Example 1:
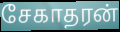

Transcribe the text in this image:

சேகாதரன்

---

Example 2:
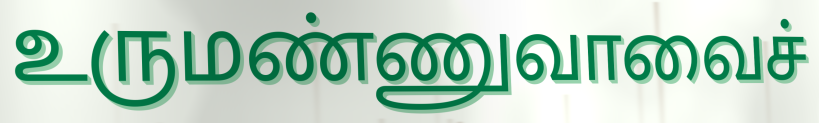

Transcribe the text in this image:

உருமண்ணுவாவைச்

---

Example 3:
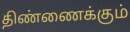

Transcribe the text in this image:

திண்ணைக்கும்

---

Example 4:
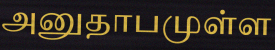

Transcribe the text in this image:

அனுதாபமுள்ள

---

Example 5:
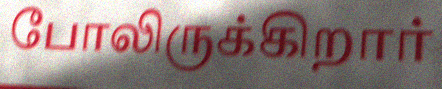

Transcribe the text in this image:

போலிருக்கிறார்